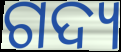
ଗଦ୍ୟ